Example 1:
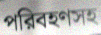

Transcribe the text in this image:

পরিবহণসহ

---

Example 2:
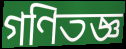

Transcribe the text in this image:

গণিতজ্ঞ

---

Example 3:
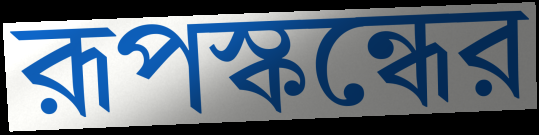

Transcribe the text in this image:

রূপস্কন্ধের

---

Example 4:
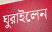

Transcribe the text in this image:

ঘুরাইলেন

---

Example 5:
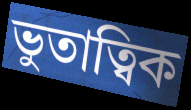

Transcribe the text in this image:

ভুতাত্বিক